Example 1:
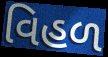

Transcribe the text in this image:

વિહળ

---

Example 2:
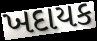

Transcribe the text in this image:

ખદાયક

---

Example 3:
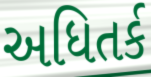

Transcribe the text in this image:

અધિતર્ક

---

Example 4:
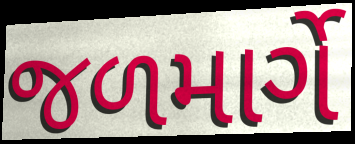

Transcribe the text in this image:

જળમાર્ગે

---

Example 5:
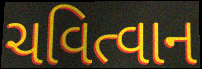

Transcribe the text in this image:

ચવિત્વાન